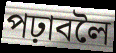
পঢ়াবলৈ